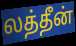
லத்தீன்